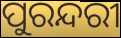
ପୁରନ୍ଦରୀ